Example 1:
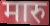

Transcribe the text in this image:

मारु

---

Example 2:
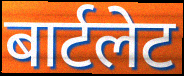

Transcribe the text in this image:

बार्टलेट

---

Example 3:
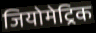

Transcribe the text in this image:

जियोमेट्रिक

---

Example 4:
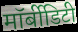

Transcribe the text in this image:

मॉर्बीडिटी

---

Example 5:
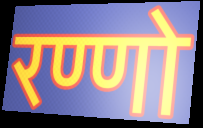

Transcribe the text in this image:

रण्णो